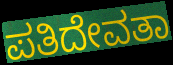
ಪತಿದೇವತಾ